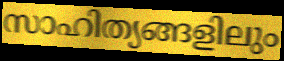
സാഹിത്യങ്ങളിലും